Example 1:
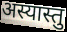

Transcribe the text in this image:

अस्यास्तु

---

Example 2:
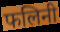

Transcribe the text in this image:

फलिनी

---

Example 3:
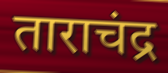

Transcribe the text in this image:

ताराचंद्र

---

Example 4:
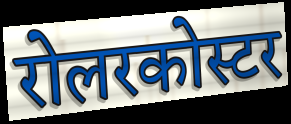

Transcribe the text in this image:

रोलरकोस्टर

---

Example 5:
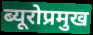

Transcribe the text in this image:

ब्यूरोप्रमुख